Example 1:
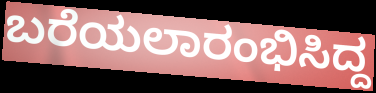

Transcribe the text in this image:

ಬರೆಯಲಾರಂಭಿಸಿದ್ದ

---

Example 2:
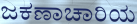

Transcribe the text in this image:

ಜಕಣಾಚಾರಿಯ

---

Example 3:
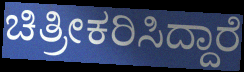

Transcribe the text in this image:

ಚಿತ್ರೀಕರಿಸಿದ್ದಾರೆ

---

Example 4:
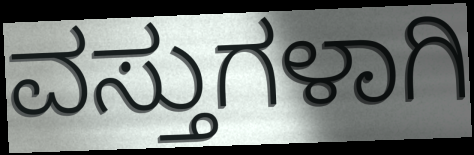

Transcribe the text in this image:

ವಸ್ತುಗಳಾಗಿ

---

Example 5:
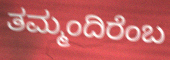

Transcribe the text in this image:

ತಮ್ಮಂದಿರೆಂಬ